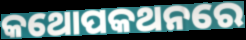
କଥୋପକଥନରେ